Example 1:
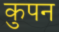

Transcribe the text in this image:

कुपन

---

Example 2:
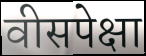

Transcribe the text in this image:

वीसपेक्षा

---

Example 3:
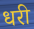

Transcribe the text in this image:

धरी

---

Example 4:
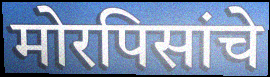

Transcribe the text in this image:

मोरपिसांचे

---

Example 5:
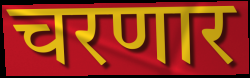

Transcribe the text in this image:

चरणार